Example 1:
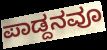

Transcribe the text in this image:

ಪಾಡ್ದನವೂ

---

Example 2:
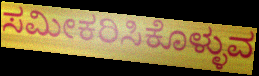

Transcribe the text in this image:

ಸಮೀಕರಿಸಿಕೊಳ್ಳುವ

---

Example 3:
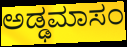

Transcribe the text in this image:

ಅಡ್ಢಮಾಸಂ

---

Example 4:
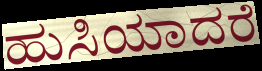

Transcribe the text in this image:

ಹುಸಿಯಾದರೆ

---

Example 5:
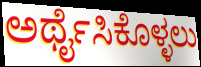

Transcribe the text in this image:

ಅರ್ಥೈಸಿಕೊಳ್ಳಲು